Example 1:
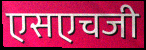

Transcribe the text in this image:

एसएचजी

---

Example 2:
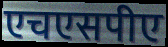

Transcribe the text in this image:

एचएसपीए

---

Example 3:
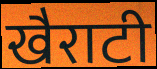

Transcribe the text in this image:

खैराटी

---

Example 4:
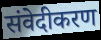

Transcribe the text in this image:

संवेदीकरण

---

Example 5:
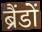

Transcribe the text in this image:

ब्रैंडों